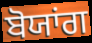
ਬੋਯਾਂਗ